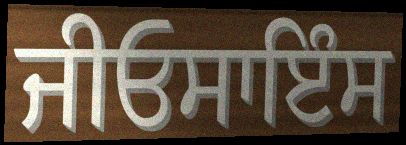
ਜੀਓਸਾਇੰਸ